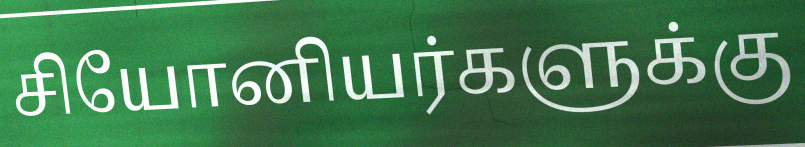
சியோனியர்களுக்கு